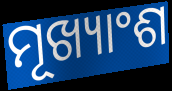
ମୂଖ୍ୟାଂଶ